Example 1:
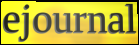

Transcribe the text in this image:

ejournal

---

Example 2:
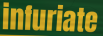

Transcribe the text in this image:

infuriate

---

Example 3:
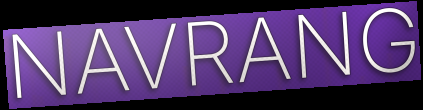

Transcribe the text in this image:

NAVRANG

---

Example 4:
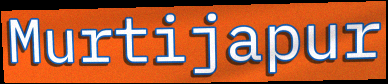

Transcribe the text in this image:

Murtijapur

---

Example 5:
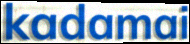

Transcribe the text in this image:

kadamai